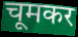
चूमकर